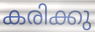
കരിക്കു